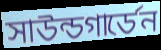
সাউন্ডগার্ডেন